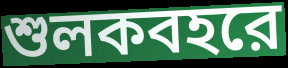
শুলকবহরে